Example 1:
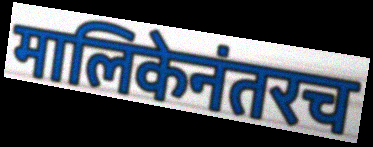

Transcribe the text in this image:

मालिकेनंतरच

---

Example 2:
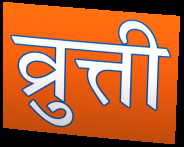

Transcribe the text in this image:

व्रुत्ती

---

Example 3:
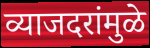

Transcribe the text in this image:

व्याजदरांमुळे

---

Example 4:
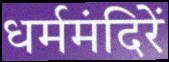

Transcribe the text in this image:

धर्ममंदिरें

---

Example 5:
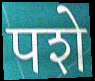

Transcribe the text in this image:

पशे